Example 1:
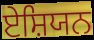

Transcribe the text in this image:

ਏਸ਼ਿਯਨ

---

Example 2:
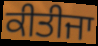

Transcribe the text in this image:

ਕੀਤੀਜਾ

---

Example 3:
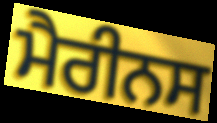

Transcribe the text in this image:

ਮੈਰੀਨਸ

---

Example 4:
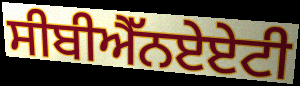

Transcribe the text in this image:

ਸੀਬੀਐੱਨਏਏਟੀ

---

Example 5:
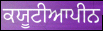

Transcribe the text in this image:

ਕਯੂਟੀਆਪੀਨ